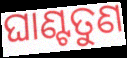
ଘାଣ୍ଟତୁଣ